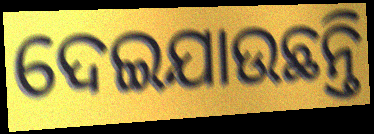
ଦେଇଯାଉଛନ୍ତି